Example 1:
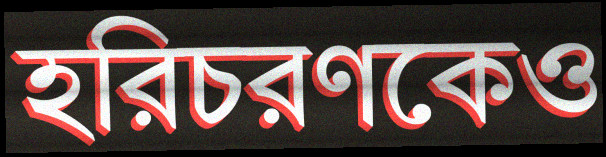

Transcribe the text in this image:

হরিচরণকেও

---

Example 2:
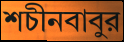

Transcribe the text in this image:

শচীনবাবুর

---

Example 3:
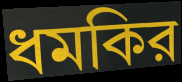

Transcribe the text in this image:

ধমকির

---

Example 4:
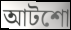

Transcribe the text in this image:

আটশো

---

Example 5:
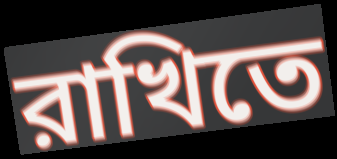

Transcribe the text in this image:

রাখিতে